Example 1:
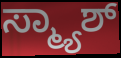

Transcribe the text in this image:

ಸ್ಮ್ಯಾಶ್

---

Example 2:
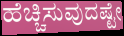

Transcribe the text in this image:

ಹೆಚ್ಚಿಸುವುದಷ್ಟೇ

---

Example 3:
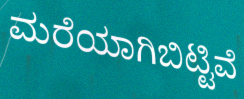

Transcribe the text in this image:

ಮರೆಯಾಗಿಬಿಟ್ಟಿವೆ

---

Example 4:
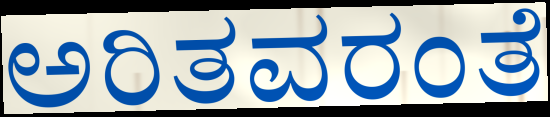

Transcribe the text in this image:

ಅರಿತವರಂತೆ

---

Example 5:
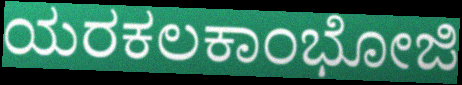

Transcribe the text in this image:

ಯರಕಲಕಾಂಭೋಜಿ